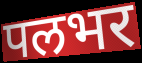
पलभर